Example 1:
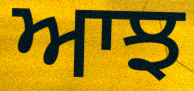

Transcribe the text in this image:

ਆਝ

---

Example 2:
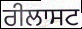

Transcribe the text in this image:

ਰੀਲਾਸਟ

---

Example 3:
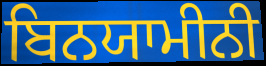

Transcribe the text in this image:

ਬਿਨਯਾਮੀਨੀ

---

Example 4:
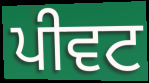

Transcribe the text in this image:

ਪੀਵਟ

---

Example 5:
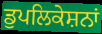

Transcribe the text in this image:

ਡੁਪਲਿਕੇਸ਼ਨਾਂ